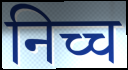
निच्च